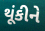
થૂંકીને